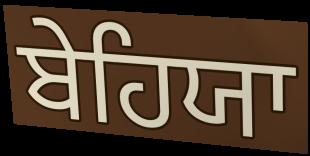
ਬੇਹਿਯਾ